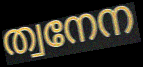
ത്വനേന